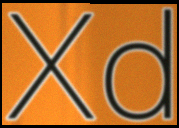
Xd